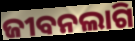
ଜୀବନଲାଗି